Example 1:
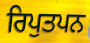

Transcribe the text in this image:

ਰਿਪੁਤਪਨ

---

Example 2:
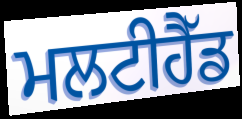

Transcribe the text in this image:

ਮਲਟੀਹੈੱਡ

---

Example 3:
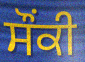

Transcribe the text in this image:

ਸੌਂਕੀ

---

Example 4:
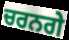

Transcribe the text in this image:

ਚਰਨਗੇ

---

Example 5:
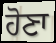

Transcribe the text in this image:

ਹੋਣਾ